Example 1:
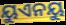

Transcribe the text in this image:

ୟୁଏନୟୁ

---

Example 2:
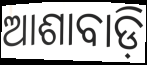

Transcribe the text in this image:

ଆଶାବାଡ଼ି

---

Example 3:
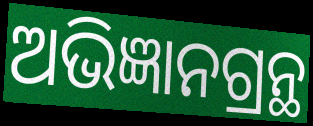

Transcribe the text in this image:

ଅଭିଜ୍ଞାନଗ୍ରନ୍ଥ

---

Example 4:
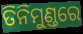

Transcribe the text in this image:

ତିନିମୁଣ୍ଡରେ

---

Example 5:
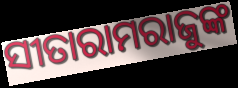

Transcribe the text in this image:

ସୀତାରାମରାଜୁଙ୍କ